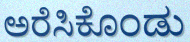
ಅರೆಸಿಕೊಂಡು